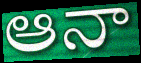
ఆనా